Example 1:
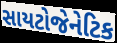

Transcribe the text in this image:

સાયટોજેનેટિક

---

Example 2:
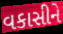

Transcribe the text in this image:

વકાસીને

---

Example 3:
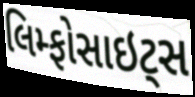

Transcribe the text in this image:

લિમ્ફોસાઇટ્સ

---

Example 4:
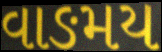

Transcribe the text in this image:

વાઙમય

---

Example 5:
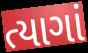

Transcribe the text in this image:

ત્યાગાં